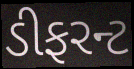
ડીફરન્ટ